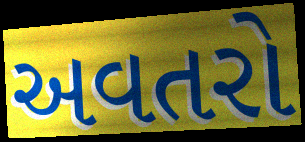
અવતરો